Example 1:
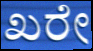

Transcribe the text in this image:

ಖರೇ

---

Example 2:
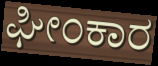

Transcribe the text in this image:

ಘೀಂಕಾರ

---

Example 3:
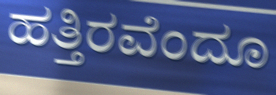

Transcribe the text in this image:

ಹತ್ತಿರವೆಂದೂ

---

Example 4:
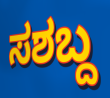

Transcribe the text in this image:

ಸಶಬ್ದ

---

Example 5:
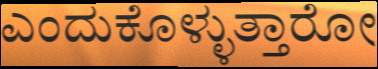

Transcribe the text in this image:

ಎಂದುಕೊಳ್ಳುತ್ತಾರೋ